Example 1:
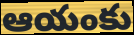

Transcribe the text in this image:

ఆయంకు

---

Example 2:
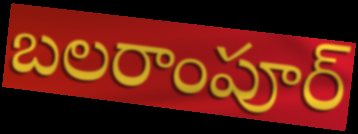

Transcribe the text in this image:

బలరాంపూర్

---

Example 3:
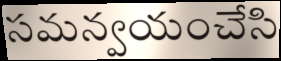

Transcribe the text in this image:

సమన్వయంచేసి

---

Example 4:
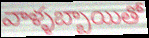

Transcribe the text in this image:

వాళ్ళబ్బాయితో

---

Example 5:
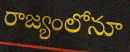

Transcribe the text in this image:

రాజ్యంలోనూ